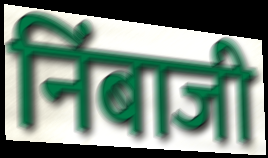
निंबाजी